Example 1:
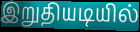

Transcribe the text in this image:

இறுதியடியில்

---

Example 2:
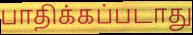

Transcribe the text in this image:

பாதிக்கப்படாது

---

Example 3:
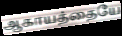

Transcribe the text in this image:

ஆகாயத்தையே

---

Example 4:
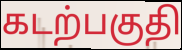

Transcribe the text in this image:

கடற்பகுதி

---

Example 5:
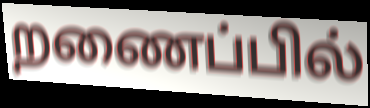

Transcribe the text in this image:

றணைப்பில்